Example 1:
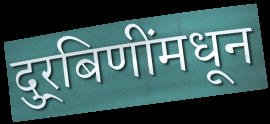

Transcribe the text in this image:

दुर्बिणींमधून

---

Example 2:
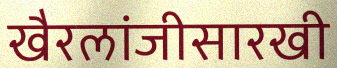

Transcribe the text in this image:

खैरलांजीसारखी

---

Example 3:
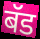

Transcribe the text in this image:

बॅड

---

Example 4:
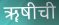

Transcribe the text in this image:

ॠषीची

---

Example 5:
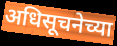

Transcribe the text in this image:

अधिसूचनेच्या